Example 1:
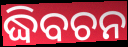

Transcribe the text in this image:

ଦ୍ଧିବଚନ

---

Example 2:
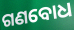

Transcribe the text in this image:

ଗଣବୋଧ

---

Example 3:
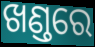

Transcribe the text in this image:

ଖଣ୍ଡରେ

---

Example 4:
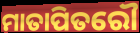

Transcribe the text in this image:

ମାତାପିତରୌ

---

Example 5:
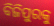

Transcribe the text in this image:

ବିଜିପୁରକୁ